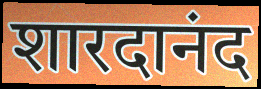
शारदानंद